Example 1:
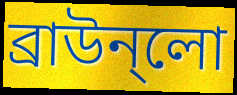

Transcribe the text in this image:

ব্রাউন্লো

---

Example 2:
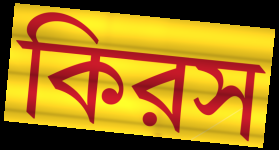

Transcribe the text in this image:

কিরস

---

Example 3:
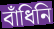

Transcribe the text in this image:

বাঁধিনি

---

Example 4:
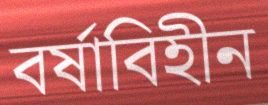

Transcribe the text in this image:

বর্ষাবিহীন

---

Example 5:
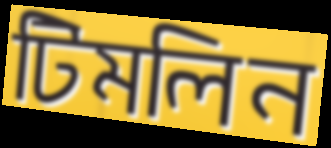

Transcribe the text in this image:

টিমলিন